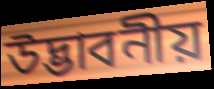
উদ্ভাবনীয়